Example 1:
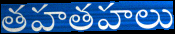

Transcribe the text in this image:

తహతహలు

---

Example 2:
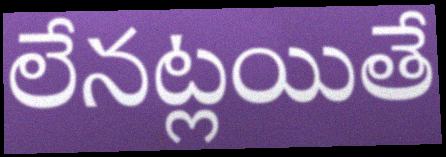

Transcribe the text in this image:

లేనట్లయితే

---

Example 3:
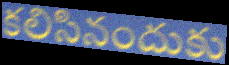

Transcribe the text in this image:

కలిసినందుకు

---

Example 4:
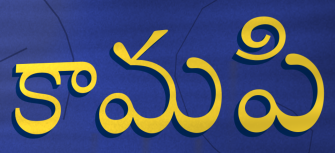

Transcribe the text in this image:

కామపి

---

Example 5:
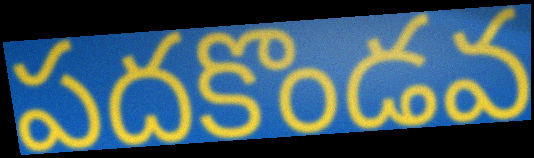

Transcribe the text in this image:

పదకొండవ